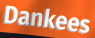
Dankees